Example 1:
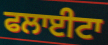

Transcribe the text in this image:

ਫਲਾਈਟਾ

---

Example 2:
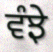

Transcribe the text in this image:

ਵੰਝੇ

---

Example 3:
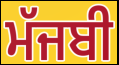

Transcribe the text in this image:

ਮੱਜਬੀ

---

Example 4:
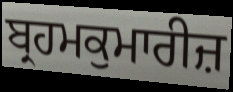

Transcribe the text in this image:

ਬ੍ਰਹਮਕੁਮਾਰੀਜ਼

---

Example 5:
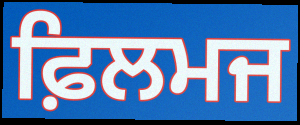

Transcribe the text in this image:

ਫ਼ਿਲਮਜ